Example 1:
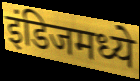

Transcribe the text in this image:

इंडिजमध्ये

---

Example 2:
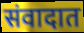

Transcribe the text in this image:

संवादात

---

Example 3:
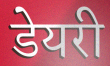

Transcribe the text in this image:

डेयरी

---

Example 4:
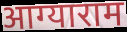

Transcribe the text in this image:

आग्याराम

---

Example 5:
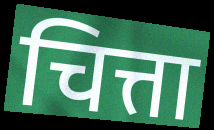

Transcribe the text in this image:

चित्ता